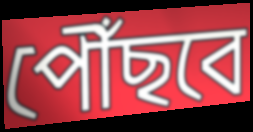
পৌঁছবে